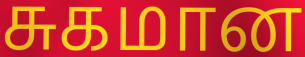
சுகமான